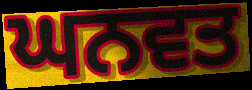
ਘਨਵਤ